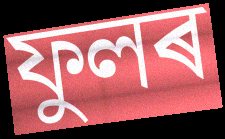
ফুলৰ